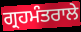
ਗ੍ਰਹਮੰਤਰਾਲੇ